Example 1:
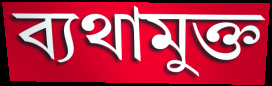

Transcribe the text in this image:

ব্যথামুক্ত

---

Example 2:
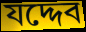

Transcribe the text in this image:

যদ্দেব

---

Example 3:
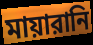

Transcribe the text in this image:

মায়ারানি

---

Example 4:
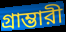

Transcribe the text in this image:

গ্রাম্ভারী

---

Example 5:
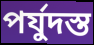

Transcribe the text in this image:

পর্যুদস্ত